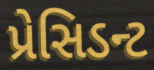
પ્રેસિડન્ટ